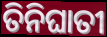
ତିନିଘାତୀ